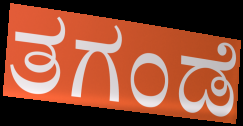
ತಗಂಡೆ